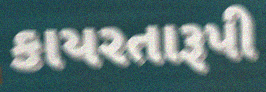
કાયરતારૂપી